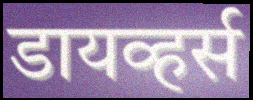
डायव्हर्स